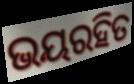
ଭୟରହିତ